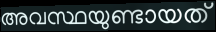
അവസ്ഥയുണ്ടായത്